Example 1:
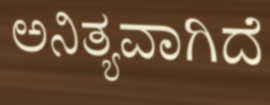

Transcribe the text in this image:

ಅನಿತ್ಯವಾಗಿದೆ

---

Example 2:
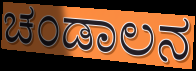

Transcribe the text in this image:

ಚಂಡಾಲನ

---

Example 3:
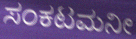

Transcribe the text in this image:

ಸಂಕಟಮನೀ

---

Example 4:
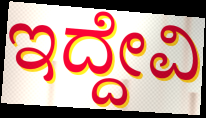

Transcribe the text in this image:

ಇದ್ದೇವಿ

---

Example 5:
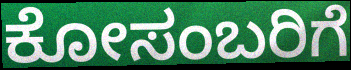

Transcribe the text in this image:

ಕೋಸಂಬರಿಗೆ